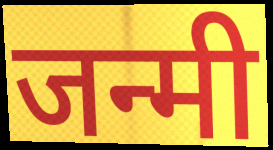
जन्मी